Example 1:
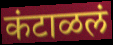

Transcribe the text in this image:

कंटाळलं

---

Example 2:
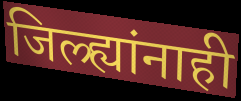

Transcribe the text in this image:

जिल्ह्यांनाही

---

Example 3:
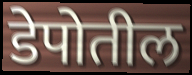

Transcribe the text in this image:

डेपोतील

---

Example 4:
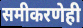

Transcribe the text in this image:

समीकरणेही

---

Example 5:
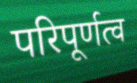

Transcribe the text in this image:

परिपूर्णत्व